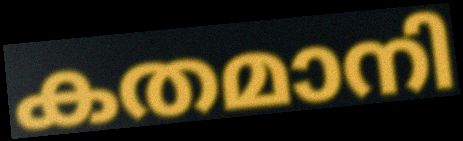
കതമാനി